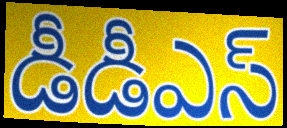
డీడీఎస్